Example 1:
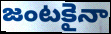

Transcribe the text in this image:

జంటకైనా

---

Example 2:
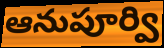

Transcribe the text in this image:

ఆనుపూర్వి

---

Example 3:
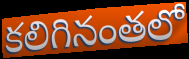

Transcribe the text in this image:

కలిగినంతలో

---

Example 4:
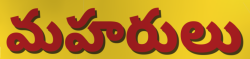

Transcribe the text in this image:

మహరులు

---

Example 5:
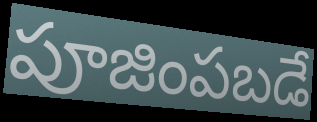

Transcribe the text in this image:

పూజింపబడే